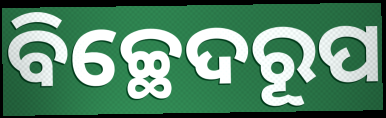
ବିଚ୍ଛେଦରୂପ